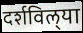
दर्शविल्या